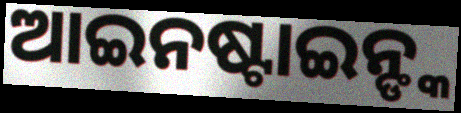
ଆଇନଷ୍ଟାଇନ୍ଙ୍କ